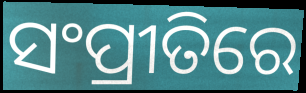
ସଂପ୍ରୀତିରେ